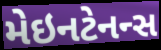
મેઇનટેનન્સ